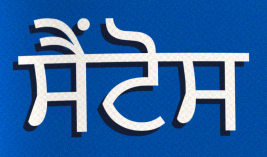
ਸੈਂਟੋਸ